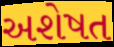
અશેષત